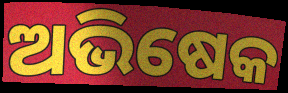
ଅଭିଷେକ